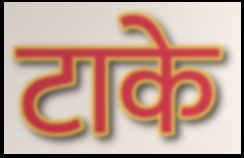
टाके